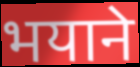
भयाने